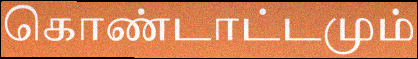
கொண்டாட்டமும்